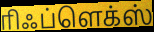
ரிஃப்ளெக்ஸ்